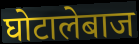
घोटालेबाज